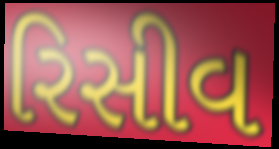
રિસીવ